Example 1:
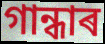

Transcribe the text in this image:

গান্ধাৰ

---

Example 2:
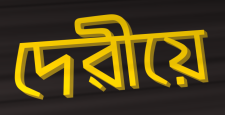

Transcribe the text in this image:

দেৱীয়ে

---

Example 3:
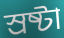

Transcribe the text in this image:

স্ৰষ্টা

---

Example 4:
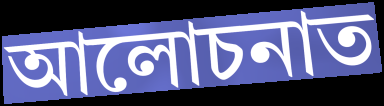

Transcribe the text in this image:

আলোচনাত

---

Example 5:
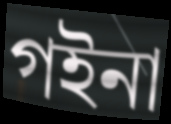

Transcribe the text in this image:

গইনা